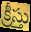
క్రీస్తు